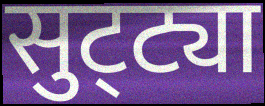
सुट्‌ट्या